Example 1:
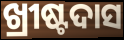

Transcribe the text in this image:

ଖ୍ରୀଷ୍ଟଦାସ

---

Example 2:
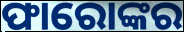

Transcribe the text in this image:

ଫାରୋଙ୍କର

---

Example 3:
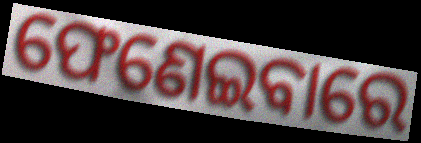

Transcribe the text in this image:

ଫେଣେଇବାରେ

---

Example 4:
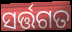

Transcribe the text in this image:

ସର୍ତ୍ତଗତ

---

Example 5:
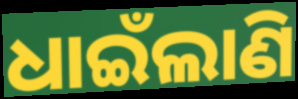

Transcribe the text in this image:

ଧାଇଁଲାଣି